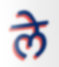
ले